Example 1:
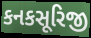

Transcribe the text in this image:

કનકસૂરિજી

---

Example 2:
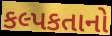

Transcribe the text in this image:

કલ્પકતાનો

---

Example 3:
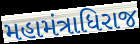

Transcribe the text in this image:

મહામંત્રાધિરાજ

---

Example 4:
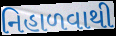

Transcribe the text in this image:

નિહાળવાથી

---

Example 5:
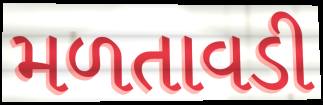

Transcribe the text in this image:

મળતાવડી